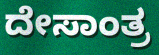
ದೇಸಾಂತ್ರ